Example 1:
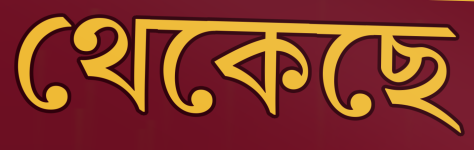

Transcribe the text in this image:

থেকেছে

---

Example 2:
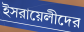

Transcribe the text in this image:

ইসরায়েলীদের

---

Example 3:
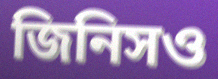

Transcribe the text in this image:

জিনিসও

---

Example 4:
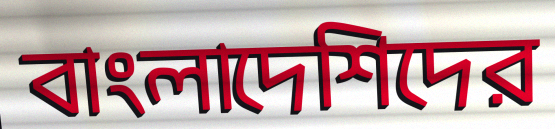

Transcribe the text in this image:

বাংলাদেশিদের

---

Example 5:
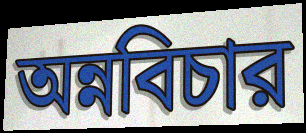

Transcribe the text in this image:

অন্নবিচার